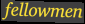
fellowmen